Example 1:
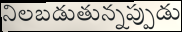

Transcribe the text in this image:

నిలబడుతున్నప్పుడు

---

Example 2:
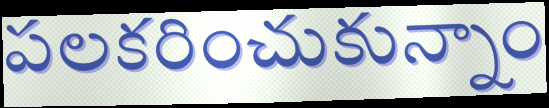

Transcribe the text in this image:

పలకరించుకున్నాం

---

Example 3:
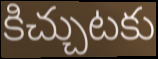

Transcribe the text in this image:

కిచ్చుటకు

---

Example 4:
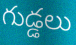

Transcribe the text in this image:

గుడ్డలు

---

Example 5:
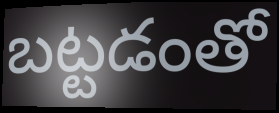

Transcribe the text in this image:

బట్టడంతో